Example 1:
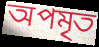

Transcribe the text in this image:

অপমৃত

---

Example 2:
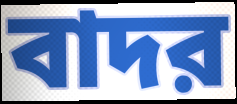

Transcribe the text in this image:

বাদর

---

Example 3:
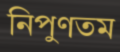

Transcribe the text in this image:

নিপুণতম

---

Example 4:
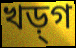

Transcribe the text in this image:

খড়্‌গ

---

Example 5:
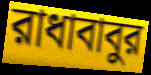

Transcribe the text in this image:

রাধাবাবুর